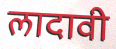
लादावी